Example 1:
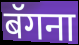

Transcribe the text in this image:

बॅगना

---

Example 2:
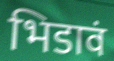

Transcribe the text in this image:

भिडावं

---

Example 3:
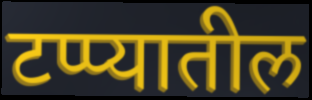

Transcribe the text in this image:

टप्प्यातील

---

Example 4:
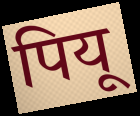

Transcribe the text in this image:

पियू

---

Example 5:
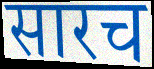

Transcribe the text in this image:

सारच